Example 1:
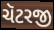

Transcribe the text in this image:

ચૅટરજી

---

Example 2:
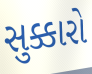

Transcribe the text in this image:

સુક્કારો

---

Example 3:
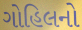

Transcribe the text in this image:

ગોહિલનો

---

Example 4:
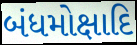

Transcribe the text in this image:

બંધમોક્ષાદિ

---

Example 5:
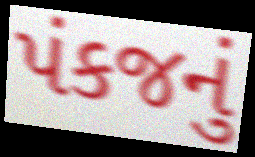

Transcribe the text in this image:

પંકજનું